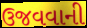
ઉજવવાની